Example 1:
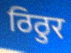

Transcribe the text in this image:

ठिठुर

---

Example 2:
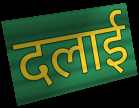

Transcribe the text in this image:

दलाई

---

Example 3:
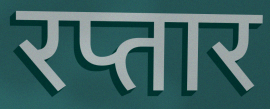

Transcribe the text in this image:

रप्तार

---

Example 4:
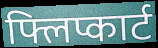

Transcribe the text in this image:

फ्लिप्कार्ट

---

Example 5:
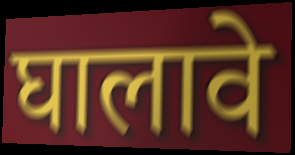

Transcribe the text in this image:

घालावे